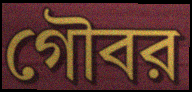
গৌবর